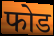
फोड